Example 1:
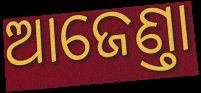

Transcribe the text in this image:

ଆଜେଣ୍ତା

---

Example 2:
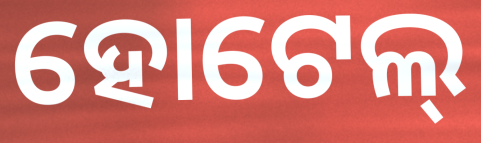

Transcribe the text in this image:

ହୋଟେଲ୍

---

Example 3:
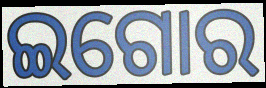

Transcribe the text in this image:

ଇଗୋର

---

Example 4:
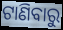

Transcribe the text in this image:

ଟାଣିବାରୁ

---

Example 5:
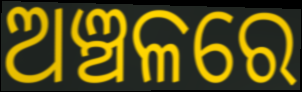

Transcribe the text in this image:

ଅଞ୍ଚଳରେ